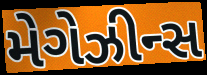
મેગેઝીન્સ